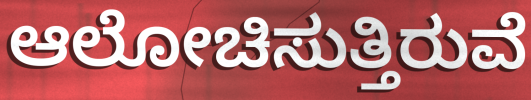
ಆಲೋಚಿಸುತ್ತಿರುವೆ